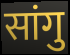
सांगु